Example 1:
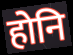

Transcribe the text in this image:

होनि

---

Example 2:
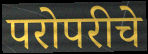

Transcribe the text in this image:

परोपरीचे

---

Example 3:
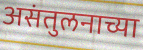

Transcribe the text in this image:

असंतुलनाच्या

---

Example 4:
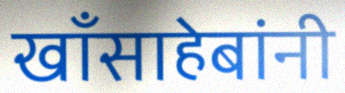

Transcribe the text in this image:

खॉंसाहेबांनी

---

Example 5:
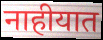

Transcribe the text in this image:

नाहीयात